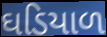
ઘડિયાળ